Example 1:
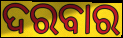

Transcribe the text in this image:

ଦରବାର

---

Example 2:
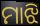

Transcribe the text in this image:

ମାଝି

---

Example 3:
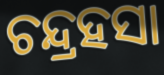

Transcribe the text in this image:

ଚନ୍ଦ୍ରହସା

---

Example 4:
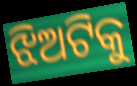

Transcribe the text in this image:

ଝିଅଟିକୁ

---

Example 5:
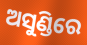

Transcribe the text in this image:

ଅସୁଣ୍ଡିରେ